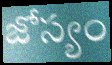
జోస్యం